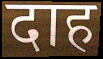
दाह